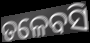
ତଳେବସି